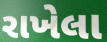
રાખેલા